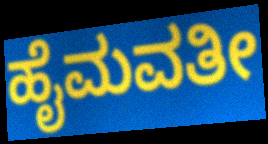
ಹೈಮವತೀ